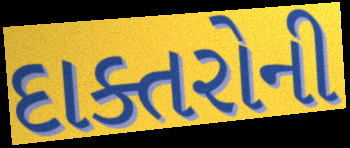
દાક્તરોની